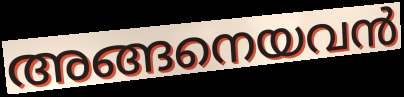
അങ്ങനെയവൻ